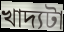
খাদ্যটা